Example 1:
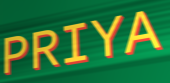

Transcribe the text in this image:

PRIYA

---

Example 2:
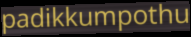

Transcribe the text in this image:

padikkumpothu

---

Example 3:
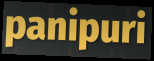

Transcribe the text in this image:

panipuri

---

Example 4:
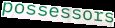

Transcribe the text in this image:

possessors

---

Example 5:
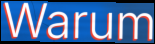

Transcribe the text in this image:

Warum